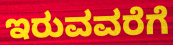
ಇರುವವರೆಗೆ